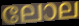
ലോല